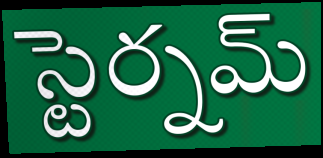
స్టెర్నమ్